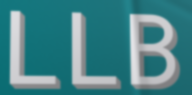
LLB